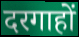
दरगाहों